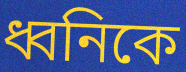
ধ্বনিকে